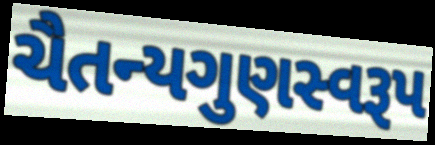
ચૈતન્યગુણસ્વરૂપ